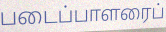
படைப்பாளரைப்